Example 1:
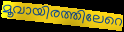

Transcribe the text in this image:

മൂവായിരത്തിലേറെ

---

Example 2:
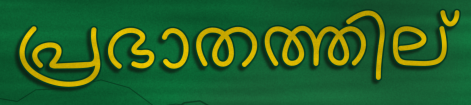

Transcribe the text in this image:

പ്രഭാതത്തില്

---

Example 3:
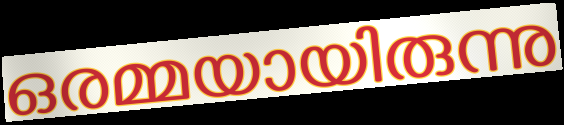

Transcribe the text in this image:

ഒരമ്മയായിരുന്നു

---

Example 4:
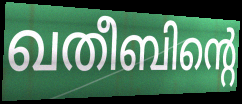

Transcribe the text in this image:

ഖതീബിന്റെ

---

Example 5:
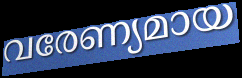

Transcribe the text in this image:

വരേണ്യമായ